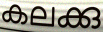
കലക്കു